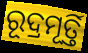
ରୂଦ୍ରମୂର୍ତ୍ତି